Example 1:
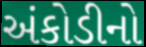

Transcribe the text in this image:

અંકોડીનો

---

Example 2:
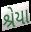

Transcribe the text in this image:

શ્રેયા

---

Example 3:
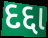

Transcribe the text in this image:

દદ્દા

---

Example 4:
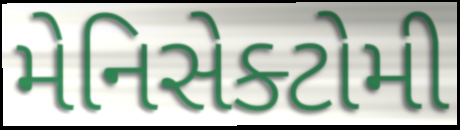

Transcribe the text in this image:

મેનિસેક્ટોમી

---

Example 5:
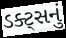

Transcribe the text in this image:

ડક્ટ્સનું